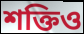
শক্তিও